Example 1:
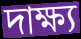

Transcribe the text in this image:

দাক্ষ্য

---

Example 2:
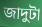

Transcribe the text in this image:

জাদুটা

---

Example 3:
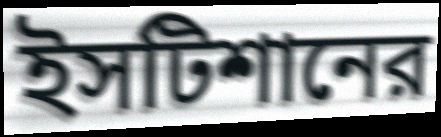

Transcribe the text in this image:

ইসটিশানের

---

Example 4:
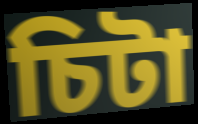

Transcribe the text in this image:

চিটা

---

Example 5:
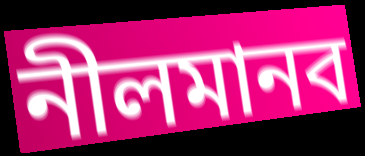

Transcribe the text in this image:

নীলমানব